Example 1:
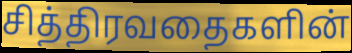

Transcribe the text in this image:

சித்திரவதைகளின்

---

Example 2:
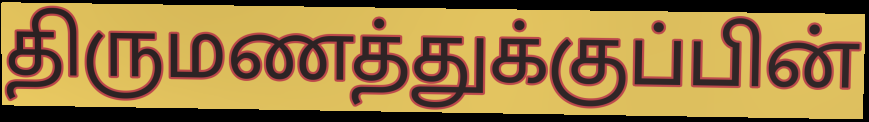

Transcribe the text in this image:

திருமணத்துக்குப்பின்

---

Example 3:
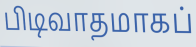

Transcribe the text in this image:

பிடிவாதமாகப்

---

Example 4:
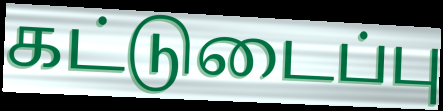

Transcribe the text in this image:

கட்டுடைப்பு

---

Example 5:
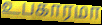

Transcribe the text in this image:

உபகாரமா